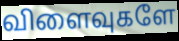
விளைவுகளே